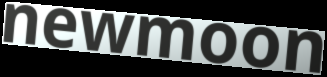
newmoon